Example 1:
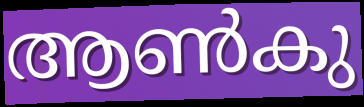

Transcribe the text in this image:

ആൺകു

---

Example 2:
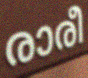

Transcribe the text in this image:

രാരീ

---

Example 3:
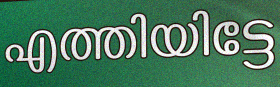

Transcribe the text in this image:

എത്തിയിട്ടേ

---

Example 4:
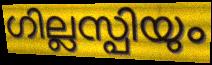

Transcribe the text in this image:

ഗില്ലസ്പിയും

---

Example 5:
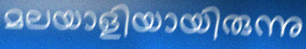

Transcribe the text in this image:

മലയാളിയായിരുന്നു